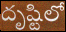
దృష్టిలో